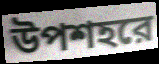
উপশহরে